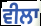
ਵੀਲਾ